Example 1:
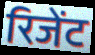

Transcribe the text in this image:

रिजेंट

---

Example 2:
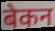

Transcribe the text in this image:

बेकन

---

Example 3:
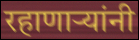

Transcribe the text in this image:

रहाणार्‍यांनी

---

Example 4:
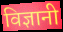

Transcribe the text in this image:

विज्ञानी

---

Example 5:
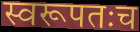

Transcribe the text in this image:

स्वरूपतःच